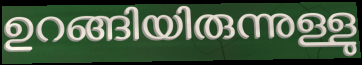
ഉറങ്ങിയിരുന്നുള്ളു